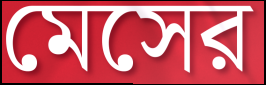
মেসের